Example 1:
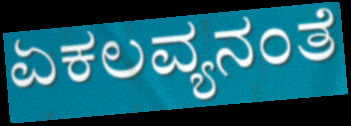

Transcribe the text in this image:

ಏಕಲವ್ಯನಂತೆ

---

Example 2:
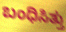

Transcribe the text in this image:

ಬಂಧಿಸಿತ್ತು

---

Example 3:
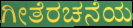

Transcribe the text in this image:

ಗೀತೆರಚನೆಯ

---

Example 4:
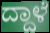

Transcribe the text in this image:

ದ್ದಾಳೆ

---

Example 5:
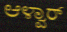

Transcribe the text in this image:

ಆಳ್ವಾರ್